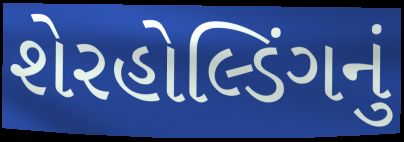
શેરહોલ્ડિંગનું